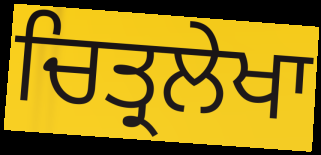
ਚਿਤ੍ਰਲੇਖਾ